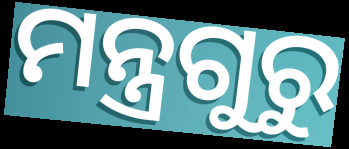
ମନ୍ତ୍ରଗୁରୁ